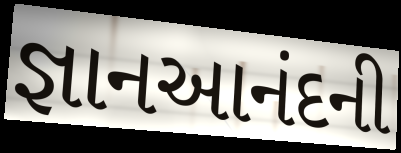
જ્ઞાનઆનંદની